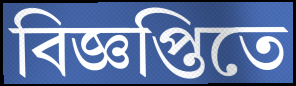
বিজ্ঞপ্তিতে